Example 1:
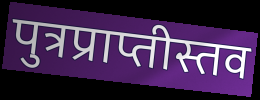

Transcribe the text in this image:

पुत्रप्राप्तीस्तव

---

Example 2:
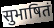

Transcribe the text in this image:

सुभाषितं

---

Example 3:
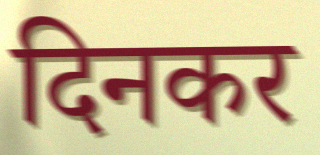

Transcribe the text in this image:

दिनकर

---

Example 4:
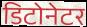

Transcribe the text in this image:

डिटोनेटर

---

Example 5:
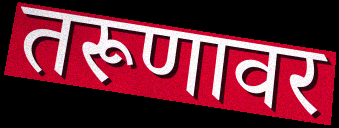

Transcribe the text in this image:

तरूणावर